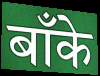
बाँके